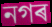
নগৰ